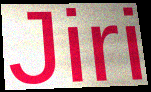
Jiri